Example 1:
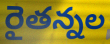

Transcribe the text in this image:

రైతన్నల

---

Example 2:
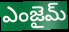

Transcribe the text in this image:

ఎంజైమ్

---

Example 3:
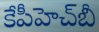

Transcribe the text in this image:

కేపీహెచ్‌బీ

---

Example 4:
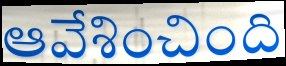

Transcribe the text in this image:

ఆవేశించింది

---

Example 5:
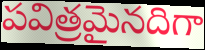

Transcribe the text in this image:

పవిత్రమైనదిగా